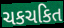
ચકચકિત